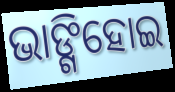
ଭାଙ୍ଗିହୋଇ